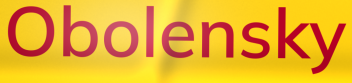
Obolensky